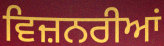
ਵਿਜ਼ਨਰੀਆਂ